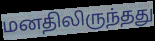
மனதிலிருந்தது